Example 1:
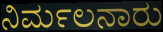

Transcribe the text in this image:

ನಿರ್ಮಲನಾರು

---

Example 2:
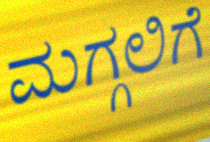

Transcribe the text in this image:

ಮಗ್ಗಲಿಗೆ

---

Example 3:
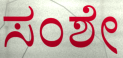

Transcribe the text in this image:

ಸಂಶೇ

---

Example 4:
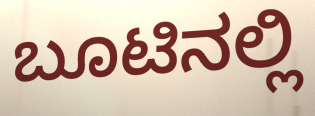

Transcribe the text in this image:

ಬೂಟಿನಲ್ಲಿ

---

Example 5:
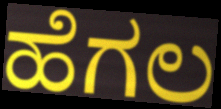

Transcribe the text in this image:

ಹೆಗಲ